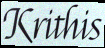
Krithis